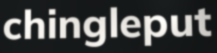
chingleput